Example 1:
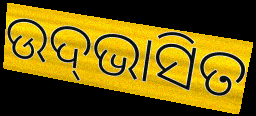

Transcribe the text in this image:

ଉଦ୍‌ଭାସିତ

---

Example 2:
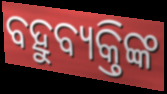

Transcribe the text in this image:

ବହୁବ୍ୟକ୍ତିଙ୍କ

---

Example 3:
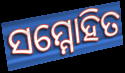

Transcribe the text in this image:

ସମ୍ମୋହିତ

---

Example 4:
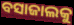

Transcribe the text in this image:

ବସାଜାଲକୁ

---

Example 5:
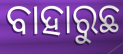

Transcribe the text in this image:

ବାହାରୁଛ